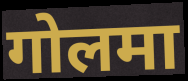
गोलमा